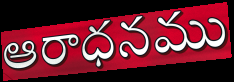
ఆరాధనము